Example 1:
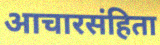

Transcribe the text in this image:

आचारसंहिता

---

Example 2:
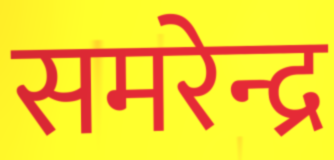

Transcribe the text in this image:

समरेन्द्र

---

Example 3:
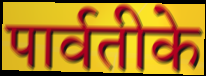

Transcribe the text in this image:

पार्वतीके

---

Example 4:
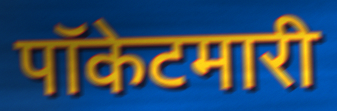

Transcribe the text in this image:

पॉकेटमारी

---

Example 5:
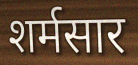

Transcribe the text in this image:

शर्मसार